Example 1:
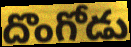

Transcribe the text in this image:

దొంగోడు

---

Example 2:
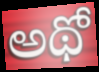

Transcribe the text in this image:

అథో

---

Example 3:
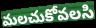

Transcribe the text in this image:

మలచుకోవలసి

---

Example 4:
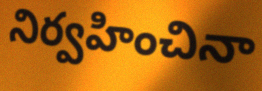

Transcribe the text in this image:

నిర్వహించినా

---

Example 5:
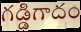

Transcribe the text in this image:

గడ్డిగాదం